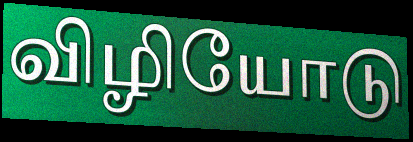
விழியோடு